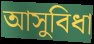
আসুবিধা